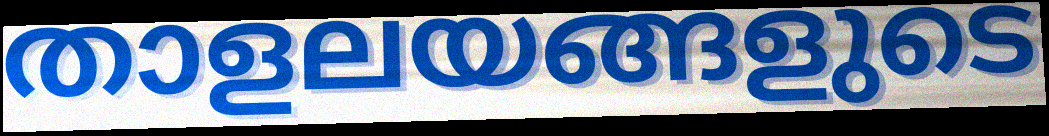
താളലയങ്ങളുടെ